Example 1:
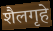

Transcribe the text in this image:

शैलगृहे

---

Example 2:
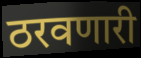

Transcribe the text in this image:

ठरवणारी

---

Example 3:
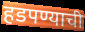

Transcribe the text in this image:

हडपण्याची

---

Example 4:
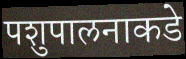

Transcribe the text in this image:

पशुपालनाकडे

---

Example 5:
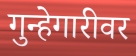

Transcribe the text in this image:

गुन्हेगारीवर